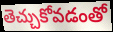
తెచ్చుకోవడంతో